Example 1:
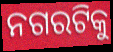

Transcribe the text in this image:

ନଗରଟିକୁ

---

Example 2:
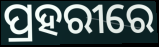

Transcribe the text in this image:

ପ୍ରହରୀରେ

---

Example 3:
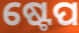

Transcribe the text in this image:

ଷ୍ଟେପ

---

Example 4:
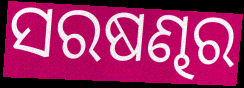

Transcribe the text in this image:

ସରଷଣ୍ଢର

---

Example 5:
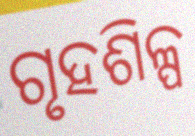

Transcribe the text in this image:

ଗୃହଶିଳ୍ପ